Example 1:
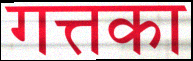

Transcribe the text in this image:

गत्तका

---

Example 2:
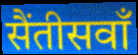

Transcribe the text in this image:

सैंतीसवाँ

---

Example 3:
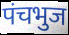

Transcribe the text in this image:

पंचभुज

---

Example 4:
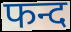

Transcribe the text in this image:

फन्द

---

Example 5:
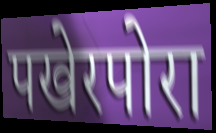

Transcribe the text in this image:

पखेरपोरा